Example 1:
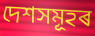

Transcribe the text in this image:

দেশসমূহৰ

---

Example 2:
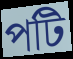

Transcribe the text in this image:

পটি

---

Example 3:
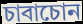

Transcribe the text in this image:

চাবাচোন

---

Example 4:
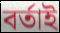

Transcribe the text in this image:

বৰ্তাই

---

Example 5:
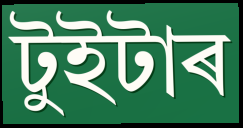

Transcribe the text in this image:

টুইটাৰ